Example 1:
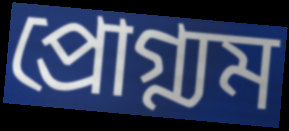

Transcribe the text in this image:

প্রোগ্মম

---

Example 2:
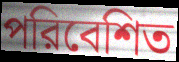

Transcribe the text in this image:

পরিবেশিত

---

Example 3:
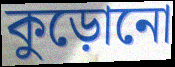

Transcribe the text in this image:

কুড়োনো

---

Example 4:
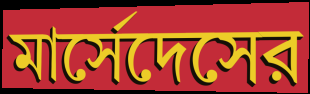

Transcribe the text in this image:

মার্সেদেসের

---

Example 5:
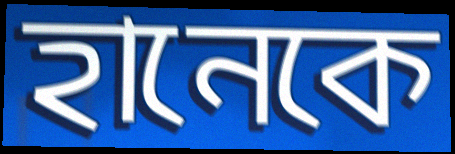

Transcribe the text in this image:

হানেকে